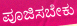
ಪೂಜಿಸಬೇಕು